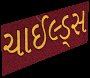
ચાઈલ્ડ્સ